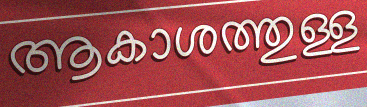
ആകാശത്തുള്ള